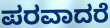
ಪರವಾದರೆ